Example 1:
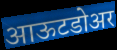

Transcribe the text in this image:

आऊटडोअर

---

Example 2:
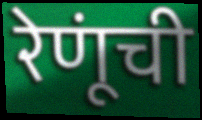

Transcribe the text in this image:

रेणूंची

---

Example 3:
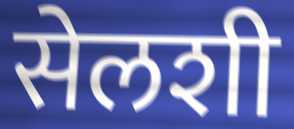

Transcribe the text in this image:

सेलशी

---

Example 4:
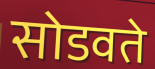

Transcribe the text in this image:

सोडवते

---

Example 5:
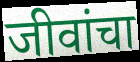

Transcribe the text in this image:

जीवांचा